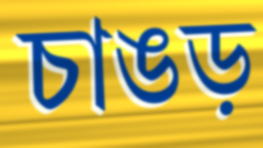
চাঙড়